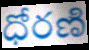
ధోరణి